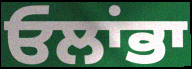
ਓਲਾਂਭਾ